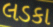
લડકા